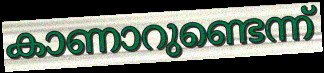
കാണാറുണ്ടെന്ന്